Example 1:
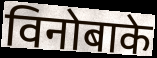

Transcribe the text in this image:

विनोबाके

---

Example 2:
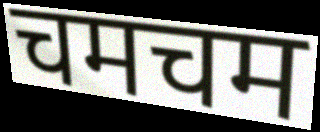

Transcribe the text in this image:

चमचम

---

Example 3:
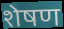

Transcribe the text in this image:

शेषण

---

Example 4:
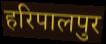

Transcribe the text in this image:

हरिपालपुर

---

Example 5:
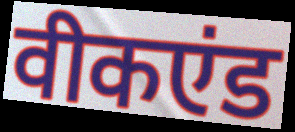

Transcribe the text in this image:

वीकएंड